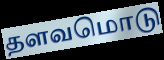
தளவமொடு